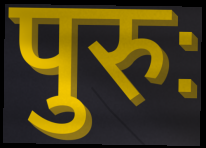
पुरुः